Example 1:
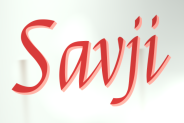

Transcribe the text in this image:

Savji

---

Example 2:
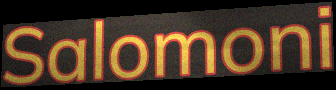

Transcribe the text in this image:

Salomoni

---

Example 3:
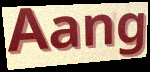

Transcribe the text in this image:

Aang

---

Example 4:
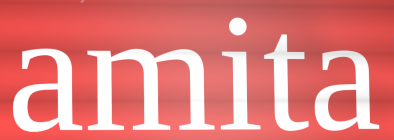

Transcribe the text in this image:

amita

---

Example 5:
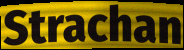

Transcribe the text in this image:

Strachan